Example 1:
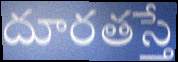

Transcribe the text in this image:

దూరతస్తే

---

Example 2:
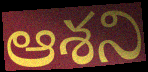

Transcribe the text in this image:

ఆశని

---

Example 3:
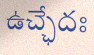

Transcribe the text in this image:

ఉచ్ఛేదః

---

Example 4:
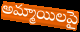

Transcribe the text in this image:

అమ్మాయిలపై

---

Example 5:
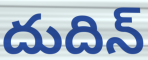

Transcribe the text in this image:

దుదిన్